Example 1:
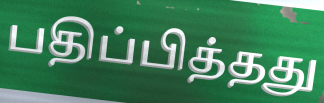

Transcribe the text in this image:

பதிப்பித்தது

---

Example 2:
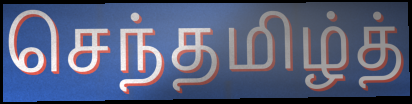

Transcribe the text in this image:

செந்தமிழ்த்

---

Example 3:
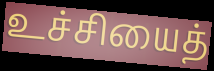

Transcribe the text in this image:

உச்சியைத்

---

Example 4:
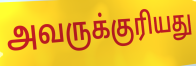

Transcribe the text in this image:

அவருக்குரியது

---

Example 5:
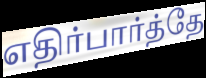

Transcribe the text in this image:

எதிர்பார்த்தே